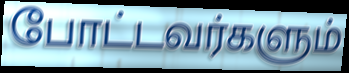
போட்டவர்களும்